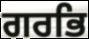
ਗਰਭਿ